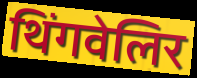
थिंगवेलिर